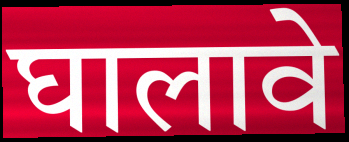
घालावे